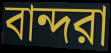
বান্দরা